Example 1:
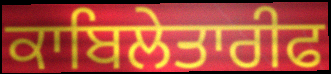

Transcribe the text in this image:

ਕਾਬਿਲੇਤਾਰੀਫ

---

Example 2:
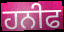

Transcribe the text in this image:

ਹਨੀਫ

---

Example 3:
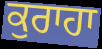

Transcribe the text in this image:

ਕੁਰਾਹਾ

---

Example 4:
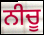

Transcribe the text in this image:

ਨੀਚੂ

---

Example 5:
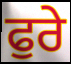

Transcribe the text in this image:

ਫੁਰੇ